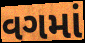
વગમાં